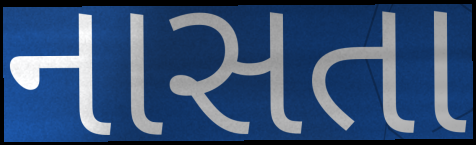
નાસતા